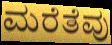
ಮರೆತೆವು